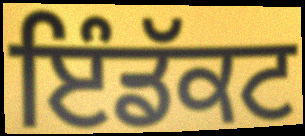
ਇੰਡੱਕਟ